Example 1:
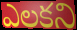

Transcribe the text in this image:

ఎలకని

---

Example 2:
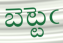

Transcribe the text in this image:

బెట్టెఁ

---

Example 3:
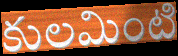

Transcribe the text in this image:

కులమింటి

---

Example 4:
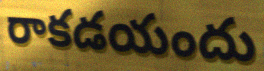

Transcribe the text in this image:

రాకడయందు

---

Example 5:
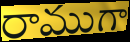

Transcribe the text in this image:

రాముగా